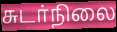
சுடர்நிலை